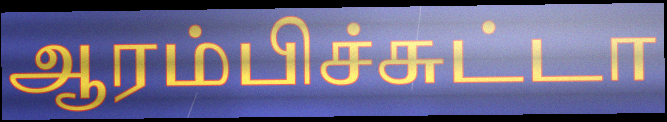
ஆரம்பிச்சுட்டா